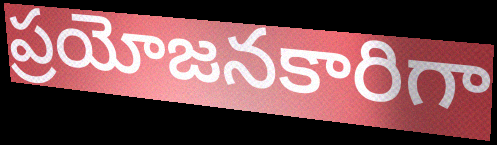
ప్రయోజనకారిగా